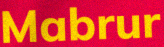
Mabrur